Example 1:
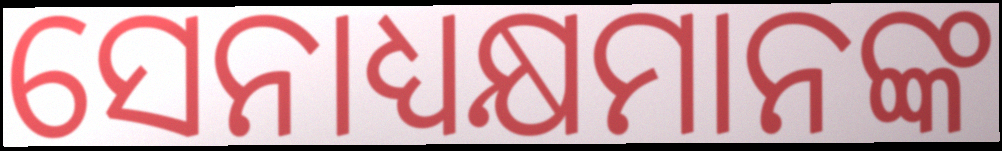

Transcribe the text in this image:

ସେନାଧ୍ୟକ୍ଷମାନଙ୍କ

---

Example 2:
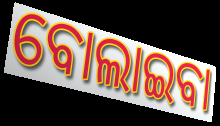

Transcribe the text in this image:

ବୋଲାଇବା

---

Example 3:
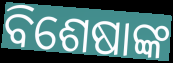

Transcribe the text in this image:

ବିଶେଷାଙ୍କ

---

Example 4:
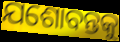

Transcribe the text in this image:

ଯଶୋବନ୍ତକୁ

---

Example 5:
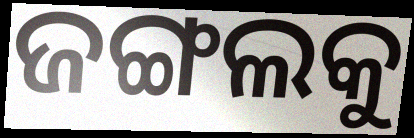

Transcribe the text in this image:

ଜଙ୍ଗଲକୁ